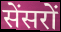
सेंसरों